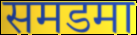
समडमा